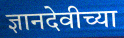
ज्ञानदेवीच्या